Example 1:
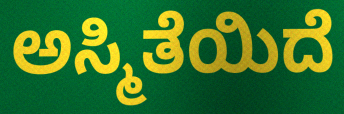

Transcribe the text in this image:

ಅಸ್ಮಿತೆಯಿದೆ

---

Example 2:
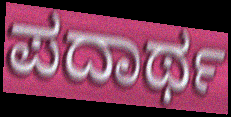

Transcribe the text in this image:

ಪದಾರ್ಥ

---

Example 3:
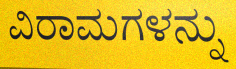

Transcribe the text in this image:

ವಿರಾಮಗಳನ್ನು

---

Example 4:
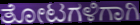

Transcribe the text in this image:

ತೋಟಗಳಿಗಾಗಿ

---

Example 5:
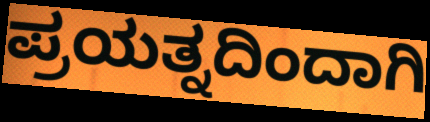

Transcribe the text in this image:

ಪ್ರಯತ್ನದಿಂದಾಗಿ